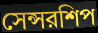
সেন্সরশিপ